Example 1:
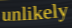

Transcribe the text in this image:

unlikely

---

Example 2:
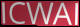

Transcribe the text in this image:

ICWAI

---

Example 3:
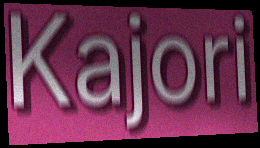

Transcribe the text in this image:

Kajori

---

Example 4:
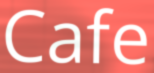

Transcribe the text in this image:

Cafe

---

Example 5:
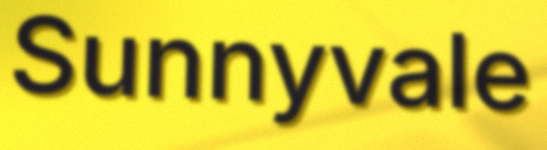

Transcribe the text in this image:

Sunnyvale